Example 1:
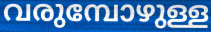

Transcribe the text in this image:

വരുമ്പോഴുള്ള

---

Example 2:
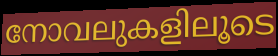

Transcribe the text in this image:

നോവലുകളിലൂടെ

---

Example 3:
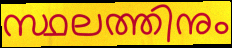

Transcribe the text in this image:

സ്ഥലത്തിനും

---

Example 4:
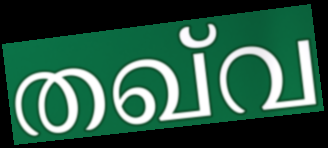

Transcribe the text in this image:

തഖ്‌വ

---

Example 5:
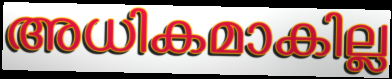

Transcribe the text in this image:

അധികമാകില്ല